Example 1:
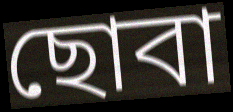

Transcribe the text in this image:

ছোবা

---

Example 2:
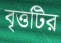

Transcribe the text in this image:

বৃত্তটির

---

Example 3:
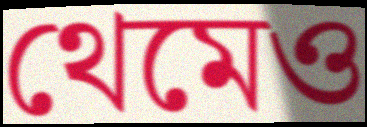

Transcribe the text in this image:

থেমেও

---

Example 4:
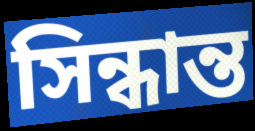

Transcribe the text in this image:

সিন্ধান্ত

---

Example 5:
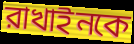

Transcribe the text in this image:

রাখাইনকে